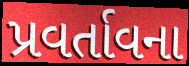
પ્રવર્તાવના